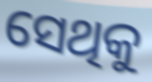
ସେଥିକୁ